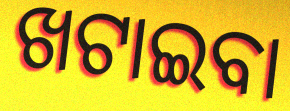
ଖଟାଇବା